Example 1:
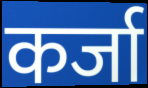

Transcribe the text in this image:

कर्जा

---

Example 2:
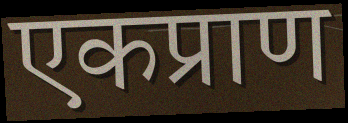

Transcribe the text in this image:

एकप्राण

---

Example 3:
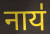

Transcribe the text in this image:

नाय॑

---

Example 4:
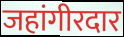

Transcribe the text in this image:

जहांगीरदार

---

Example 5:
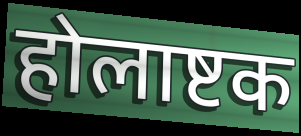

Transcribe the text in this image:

होलाष्टक